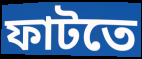
ফাটতে